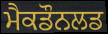
ਮੈਕਡੌਨਲਡ